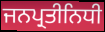
ਜਨਪ੍ਰਤੀਨਿਧੀ